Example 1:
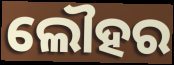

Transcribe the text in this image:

ଲୌହର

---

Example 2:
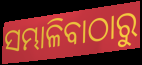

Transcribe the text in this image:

ସମ୍ଭାଳିବାଠାରୁ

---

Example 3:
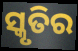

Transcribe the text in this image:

ସ୍କୃତିର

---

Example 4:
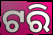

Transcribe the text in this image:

ଟରି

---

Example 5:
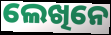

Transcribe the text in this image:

ଲେଖିନେ